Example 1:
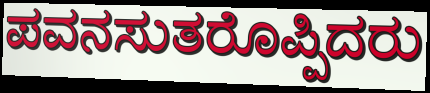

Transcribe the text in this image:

ಪವನಸುತರೊಪ್ಪಿದರು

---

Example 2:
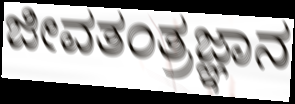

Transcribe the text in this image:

ಜೀವತಂತ್ರಜ್ಞಾನ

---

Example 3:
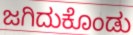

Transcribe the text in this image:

ಜಗಿದುಕೊಂಡು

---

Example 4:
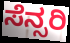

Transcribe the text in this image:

ಸೆನ್ಸರಿ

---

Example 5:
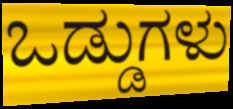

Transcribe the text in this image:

ಒಡ್ಡುಗಳು